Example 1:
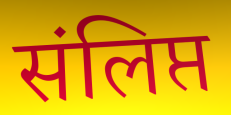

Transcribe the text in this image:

संलिप्त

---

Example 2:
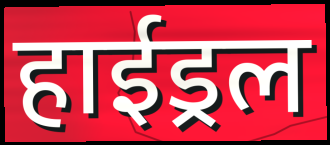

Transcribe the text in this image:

हाईड्रल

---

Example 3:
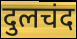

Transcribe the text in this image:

दुलचंद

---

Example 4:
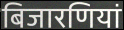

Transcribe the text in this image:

बिजारणियां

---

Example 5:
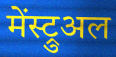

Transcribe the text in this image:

मेंस्ट्रुअल